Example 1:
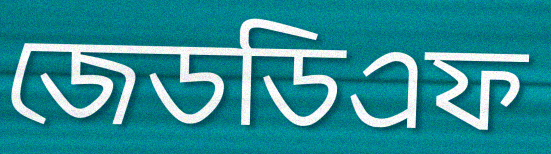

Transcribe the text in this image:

জেডডিএফ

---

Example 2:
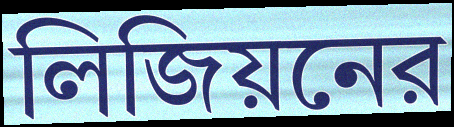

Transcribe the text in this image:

লিজিয়নের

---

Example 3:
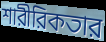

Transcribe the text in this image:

শারীরিকতার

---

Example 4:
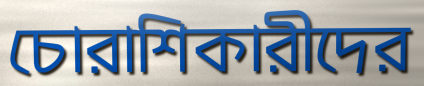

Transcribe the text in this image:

চোরাশিকারীদের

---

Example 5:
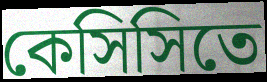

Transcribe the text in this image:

কেসিসিতে